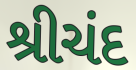
શ્રીચંદ